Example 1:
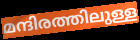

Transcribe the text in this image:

മന്ദിരത്തിലുള്ള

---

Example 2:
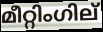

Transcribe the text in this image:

മീറ്റിംഗില്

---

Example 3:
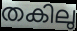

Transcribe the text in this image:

തകിലു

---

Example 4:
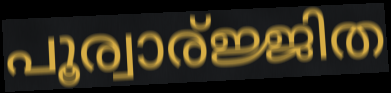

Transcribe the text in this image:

പൂര്വാര്ജ്ജിത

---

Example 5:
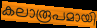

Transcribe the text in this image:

കലാരൂപമായി